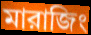
মারাজিং